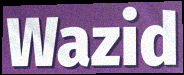
Wazid